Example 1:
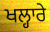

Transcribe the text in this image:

ਖਲ੍ਹਾਰੇ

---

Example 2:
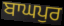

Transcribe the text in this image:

ਬਾਘਪੁਰ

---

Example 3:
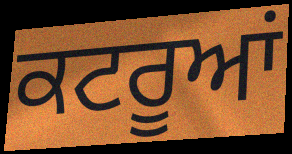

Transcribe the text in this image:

ਕਟਰੂਆਂ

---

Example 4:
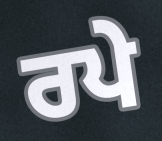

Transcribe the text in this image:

ਰਪੇ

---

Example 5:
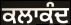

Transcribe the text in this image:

ਕਲਾਕੰਦ